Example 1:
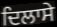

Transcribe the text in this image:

ਦਿਲਾਸੇ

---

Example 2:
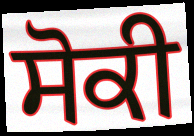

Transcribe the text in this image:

ਸੋਕੀ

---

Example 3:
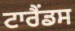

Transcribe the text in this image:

ਟਾਰੈਂਡਸ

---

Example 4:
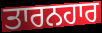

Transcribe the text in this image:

ਤਾਰਨਹਾਰ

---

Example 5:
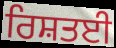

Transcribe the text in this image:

ਰਿਸ਼ਤਈ